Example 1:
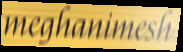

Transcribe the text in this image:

meghanimesh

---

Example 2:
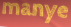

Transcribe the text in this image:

manye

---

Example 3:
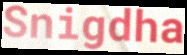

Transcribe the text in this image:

Snigdha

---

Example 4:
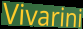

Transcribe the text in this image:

Vivarini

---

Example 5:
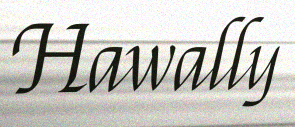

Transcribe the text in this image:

Hawally